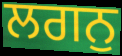
ਲਗਨੁ